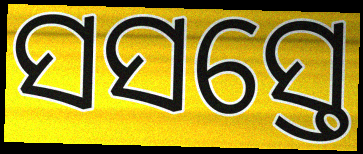
ସସସ୍ତେ